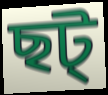
ছট্